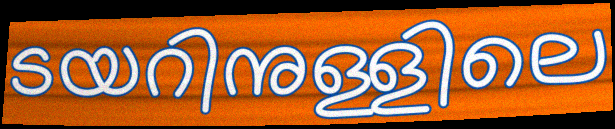
ടയറിനുള്ളിലെ